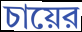
চায়ের